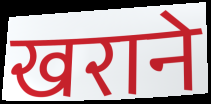
खराने